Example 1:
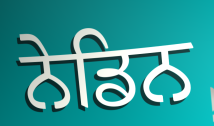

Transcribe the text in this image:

ਨੇਡਿਨ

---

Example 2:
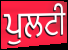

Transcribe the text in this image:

ਪੁਲਟੀ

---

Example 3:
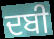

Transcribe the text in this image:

ਦਬੀ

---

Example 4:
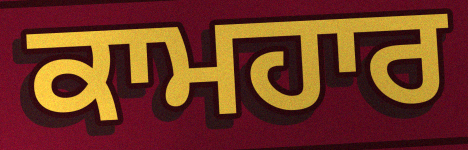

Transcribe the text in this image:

ਕਾਮਹਾਰ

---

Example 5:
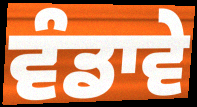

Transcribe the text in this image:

ਵੰਡਾਵੇ